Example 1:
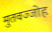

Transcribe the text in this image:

मुतवज्जोह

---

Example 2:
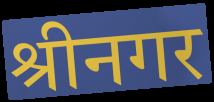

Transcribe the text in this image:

श्रीनगर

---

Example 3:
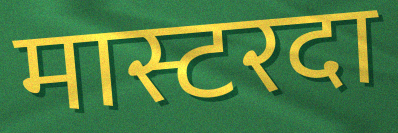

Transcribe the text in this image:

मास्टरदा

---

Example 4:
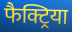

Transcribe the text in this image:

फैक्ट्रिया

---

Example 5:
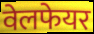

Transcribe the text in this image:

वेलफेयर